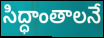
సిద్ధాంతాలనే